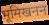
भूमिखनन